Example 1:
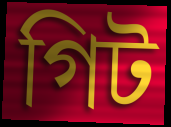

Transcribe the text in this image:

গিট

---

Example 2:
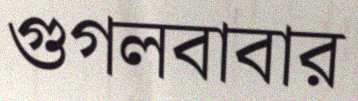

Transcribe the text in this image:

গুগলবাবার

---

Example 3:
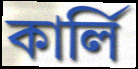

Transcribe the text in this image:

কার্লি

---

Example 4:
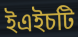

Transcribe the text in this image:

ইএইচটি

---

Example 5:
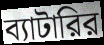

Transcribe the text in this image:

ব্যাটারির